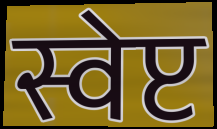
स्वेप्ट